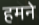
हमने